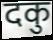
दकु